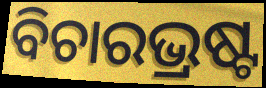
ବିଚାରଭ୍ରଷ୍ଟ